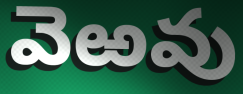
వెఱవు